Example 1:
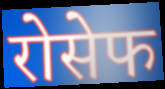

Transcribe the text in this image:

रोसेफ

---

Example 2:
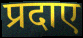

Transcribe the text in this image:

प्रदाए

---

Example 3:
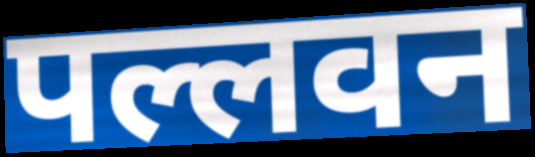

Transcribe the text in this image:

पल्लवन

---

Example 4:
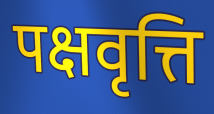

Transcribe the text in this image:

पक्षवृत्ति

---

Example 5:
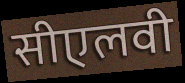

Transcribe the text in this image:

सीएलवी